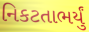
નિકટતાભર્યું